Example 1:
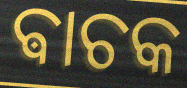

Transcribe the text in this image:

ଵାଚକ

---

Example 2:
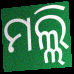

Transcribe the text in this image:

ମଲ୍ଲି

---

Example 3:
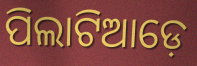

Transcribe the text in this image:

ପିଲାଟିଆଡ଼େ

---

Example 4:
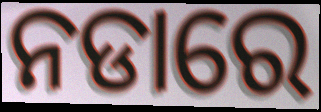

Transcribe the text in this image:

ନଡାରେ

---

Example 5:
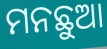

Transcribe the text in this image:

ମନଛୁଆ